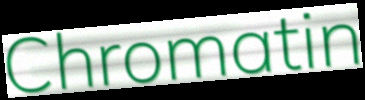
Chromatin